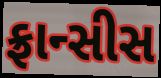
ફ્રાન્સીસ